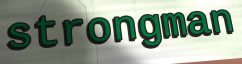
strongman